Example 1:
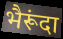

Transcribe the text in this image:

भैरूंदा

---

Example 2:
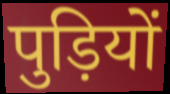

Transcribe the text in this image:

पुड़ियों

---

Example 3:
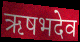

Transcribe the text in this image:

ऋषभदेव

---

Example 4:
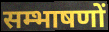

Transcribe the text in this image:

सम्भाषणों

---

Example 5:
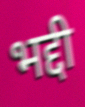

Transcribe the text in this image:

भद्दी